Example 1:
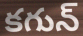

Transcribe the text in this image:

కగున్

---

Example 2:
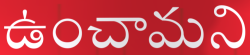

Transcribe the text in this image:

ఉంచామని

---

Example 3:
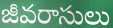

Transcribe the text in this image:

జీవరాసులు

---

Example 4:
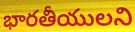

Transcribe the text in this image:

భారతీయులని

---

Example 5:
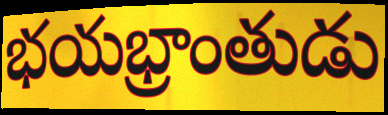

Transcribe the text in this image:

భయభ్రాంతుడు